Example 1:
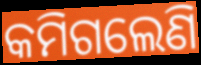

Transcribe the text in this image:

କମିଗଲେଣି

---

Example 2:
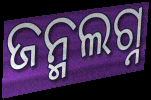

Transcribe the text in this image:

ଜନ୍ମଲଗ୍ନ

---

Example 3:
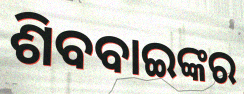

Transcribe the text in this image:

ଶିବବାଇଙ୍କର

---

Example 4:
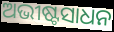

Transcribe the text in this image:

ଅଭୀଷ୍ଟସାଧନ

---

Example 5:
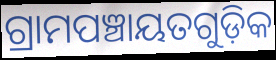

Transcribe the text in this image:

ଗ୍ରାମପଞ୍ଚାୟତଗୁଡ଼ିକ